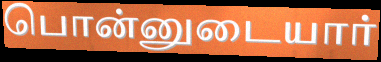
பொன்னுடையார்